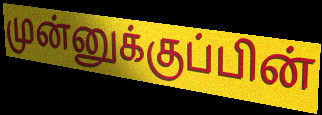
முன்னுக்குப்பின்